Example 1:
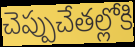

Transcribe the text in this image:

చెప్పుచేతల్లోకి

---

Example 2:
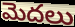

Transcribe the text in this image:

మెదలు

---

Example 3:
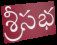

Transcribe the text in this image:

శ్రీసభ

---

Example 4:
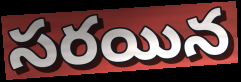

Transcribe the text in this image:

సరయిన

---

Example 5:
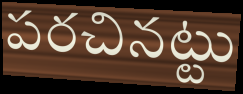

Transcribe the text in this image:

పరచినట్టు